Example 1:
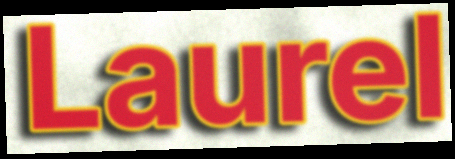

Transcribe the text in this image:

Laurel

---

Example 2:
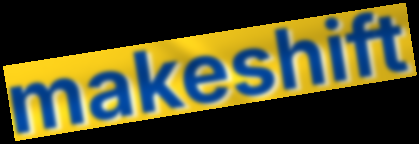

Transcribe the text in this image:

makeshift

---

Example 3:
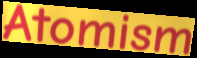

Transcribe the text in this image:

Atomism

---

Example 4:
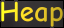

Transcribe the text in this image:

Heap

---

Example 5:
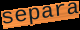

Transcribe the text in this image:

separa